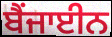
ਬੈਂਜਾਈਨ